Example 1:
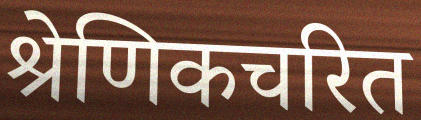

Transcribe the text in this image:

श्रेणिकचरित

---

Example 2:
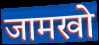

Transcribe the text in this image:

जामखो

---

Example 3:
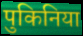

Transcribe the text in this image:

पुकिनिया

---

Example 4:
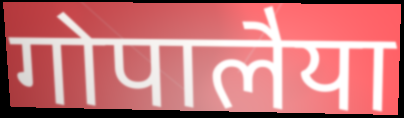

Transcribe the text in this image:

गोपालैया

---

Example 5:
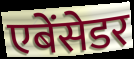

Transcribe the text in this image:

एबेंसेडर